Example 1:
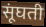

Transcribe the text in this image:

सूंघती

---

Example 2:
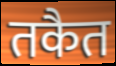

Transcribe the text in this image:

तकैत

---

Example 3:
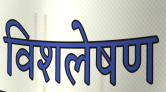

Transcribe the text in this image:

विशलेषण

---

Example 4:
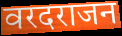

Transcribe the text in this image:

वरदराजन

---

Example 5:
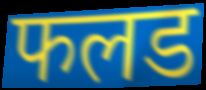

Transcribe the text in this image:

फलड